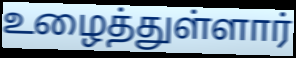
உழைத்துள்ளார்